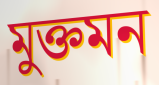
মুক্তমন